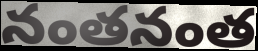
నంతనంత